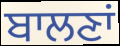
ਬਾਲਣਾਂ